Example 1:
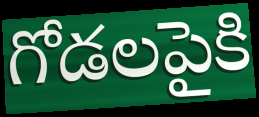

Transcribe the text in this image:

గోడలపైకి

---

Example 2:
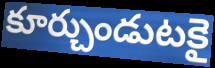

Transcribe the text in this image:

కూర్చుండుటకై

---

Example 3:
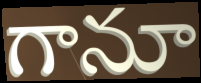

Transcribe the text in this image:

గానూ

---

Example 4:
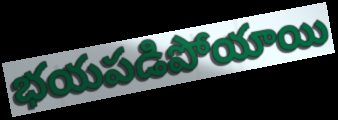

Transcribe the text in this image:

భయపడిపోయాయి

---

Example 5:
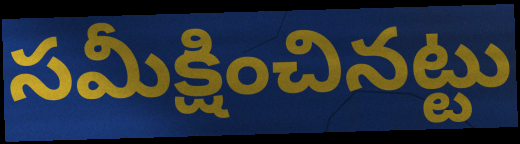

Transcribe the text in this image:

సమీక్షించినట్టు